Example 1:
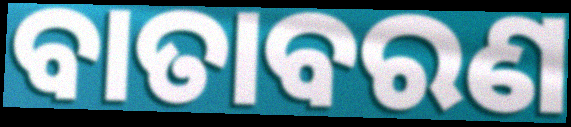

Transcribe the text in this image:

ବାତାବରଣ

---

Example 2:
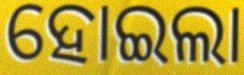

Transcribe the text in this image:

ହୋଇଲା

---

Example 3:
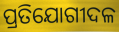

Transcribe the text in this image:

ପ୍ରତିଯୋଗୀଦଳ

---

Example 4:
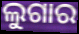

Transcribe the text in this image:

ଲୁଗାର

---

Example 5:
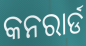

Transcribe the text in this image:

କନରାର୍ଡ